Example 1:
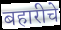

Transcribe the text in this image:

बहारीचे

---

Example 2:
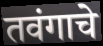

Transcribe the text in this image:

तवंगाचे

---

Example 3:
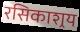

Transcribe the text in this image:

रसिकाश्रय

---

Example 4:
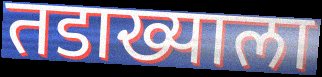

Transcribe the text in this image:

तडाख्याला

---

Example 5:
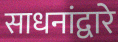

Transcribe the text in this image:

साधनांद्वारे